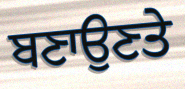
ਬਣਾਉਣਤੇ